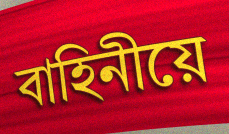
বাহিনীয়ে